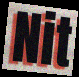
Nit